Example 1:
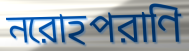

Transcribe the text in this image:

নরোহপরাণি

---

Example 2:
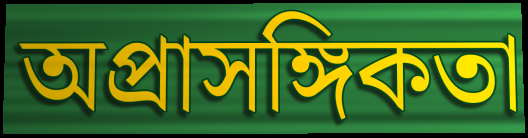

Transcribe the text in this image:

অপ্রাসঙ্গিকতা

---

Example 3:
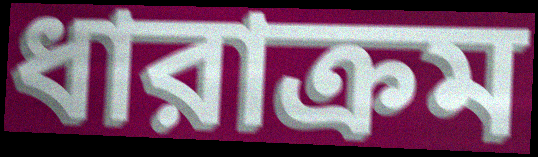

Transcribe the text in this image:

ধারাক্রম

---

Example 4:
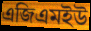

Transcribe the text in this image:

এজিএমইউ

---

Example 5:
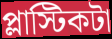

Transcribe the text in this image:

প্লাস্টিকটা